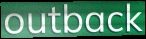
outback